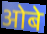
ओबे